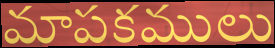
మాపకములు